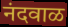
नंदवाळ